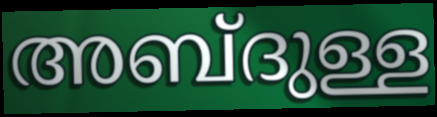
അബ്ദുള്ള